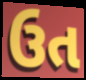
ઉત